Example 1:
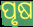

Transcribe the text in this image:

ପୃଷ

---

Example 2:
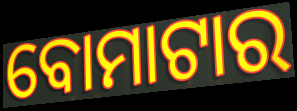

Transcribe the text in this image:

ବୋମାଟାର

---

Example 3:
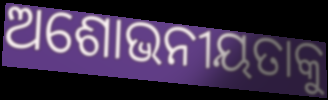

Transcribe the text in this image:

ଅଶୋଭନୀୟତାକୁ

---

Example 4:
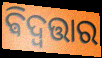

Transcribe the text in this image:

ଵିଦ୍ବତ୍ତାର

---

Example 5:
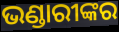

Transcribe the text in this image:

ଭଣ୍ଡାରୀଙ୍କର